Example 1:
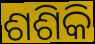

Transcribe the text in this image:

ଶଶିକି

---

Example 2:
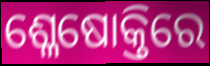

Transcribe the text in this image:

ଶ୍ଳେଷୋକ୍ତିରେ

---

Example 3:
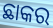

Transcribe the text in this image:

ଛାକର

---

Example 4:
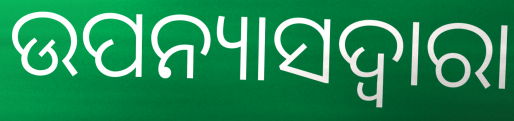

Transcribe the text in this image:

ଉପନ୍ୟାସଦ୍ୱାରା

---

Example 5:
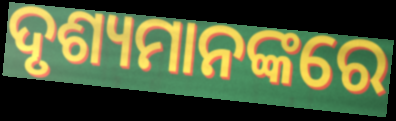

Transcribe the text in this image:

ଦୃଶ୍ୟମାନଙ୍କରେ